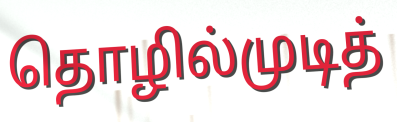
தொழில்முடித்